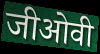
जीओवी